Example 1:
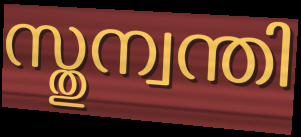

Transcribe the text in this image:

സ്തുന്വന്തി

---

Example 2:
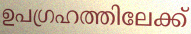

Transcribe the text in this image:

ഉപഗ്രഹത്തിലേക്ക്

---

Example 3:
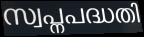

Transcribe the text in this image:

സ്വപ്നപദ്ധതി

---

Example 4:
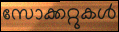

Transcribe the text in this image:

സോക്കറ്റുകൾ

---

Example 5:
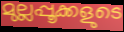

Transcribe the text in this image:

മുല്ലപ്പൂക്കളുടെ